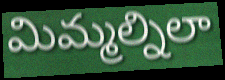
మిమ్మల్నిలా